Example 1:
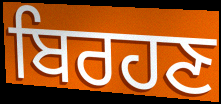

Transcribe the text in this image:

ਬਿਰਹਣ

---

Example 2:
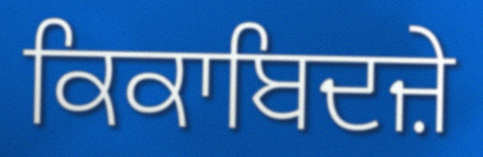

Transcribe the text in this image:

ਕਿਕਾਬਿਦਜ਼ੇ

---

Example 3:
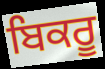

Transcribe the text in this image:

ਬਿਕਰੂ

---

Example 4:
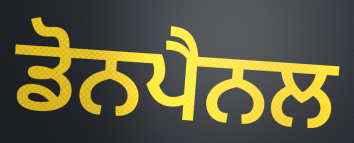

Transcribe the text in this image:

ਡੋਨਪੈਨਲ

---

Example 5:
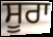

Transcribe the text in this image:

ਸੂਰਾ